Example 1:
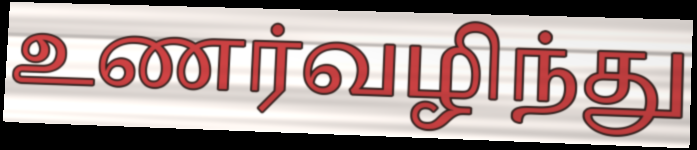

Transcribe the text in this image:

உணர்வழிந்து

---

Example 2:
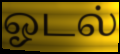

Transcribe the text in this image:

ஓடல்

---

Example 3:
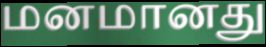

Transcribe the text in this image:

மனமானது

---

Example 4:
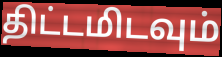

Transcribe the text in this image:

திட்டமிடவும்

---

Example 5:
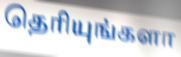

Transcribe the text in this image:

தெரியுங்களா